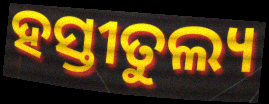
ହସ୍ତୀତୁଲ୍ୟ